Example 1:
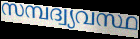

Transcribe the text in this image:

സമ്പദ്വ്യവസ്ഥ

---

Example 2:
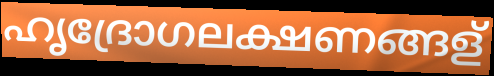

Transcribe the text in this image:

ഹൃദ്രോഗലക്ഷണങ്ങള്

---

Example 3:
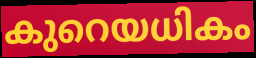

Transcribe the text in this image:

കുറെയധികം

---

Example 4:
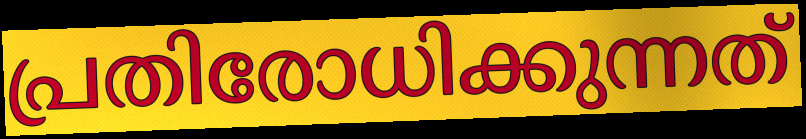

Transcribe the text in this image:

പ്രതിരോധിക്കുന്നത്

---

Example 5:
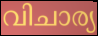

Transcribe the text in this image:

വിചാര്യ